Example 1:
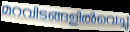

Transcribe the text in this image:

മറവിടങ്ങളിൽവെച്ചു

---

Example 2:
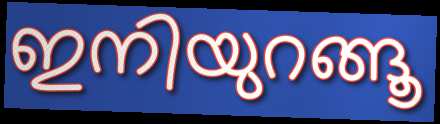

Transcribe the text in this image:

ഇനിയുറങ്ങൂ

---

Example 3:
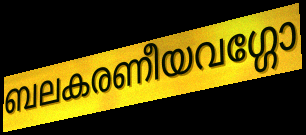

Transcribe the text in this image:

ബലകരണീയവഗ്ഗോ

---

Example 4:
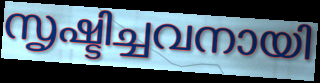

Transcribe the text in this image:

സൃഷ്ടിച്ചവനായി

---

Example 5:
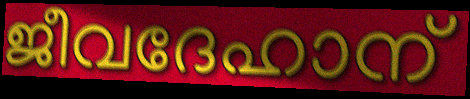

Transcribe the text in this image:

ജീവദേഹാന്